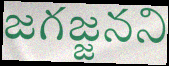
జగజ్జనని